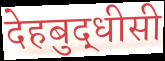
देहबुद्धीसी